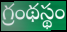
గ్రంథస్థం